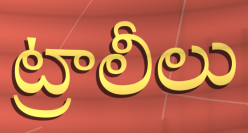
ట్రాలీలు